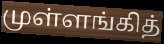
முள்ளங்கித்